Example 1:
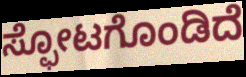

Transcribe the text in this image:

ಸ್ಫೋಟಗೊಂಡಿದೆ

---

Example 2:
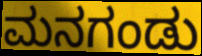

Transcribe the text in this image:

ಮನಗಂಡು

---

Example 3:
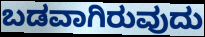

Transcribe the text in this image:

ಬಡವಾಗಿರುವುದು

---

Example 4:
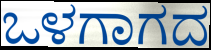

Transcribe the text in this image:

ಒಳಗಾಗದ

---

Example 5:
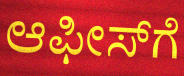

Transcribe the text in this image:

ಆಫೀಸ್‍ಗೆ